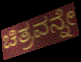
ಚಿತ್ರವನ್ನೇ